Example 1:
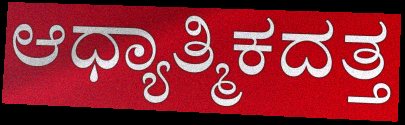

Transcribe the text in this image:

ಆಧ್ಯಾತ್ಮಿಕದತ್ತ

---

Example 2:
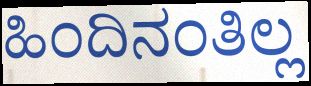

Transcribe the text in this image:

ಹಿಂದಿನಂತಿಲ್ಲ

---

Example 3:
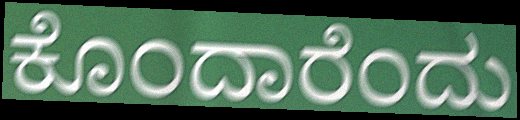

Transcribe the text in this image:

ಕೊಂದಾರೆಂದು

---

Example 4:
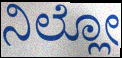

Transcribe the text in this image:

ನಿಲ್ಲೋ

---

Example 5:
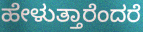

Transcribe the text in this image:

ಹೇಳುತ್ತಾರೆಂದರೆ